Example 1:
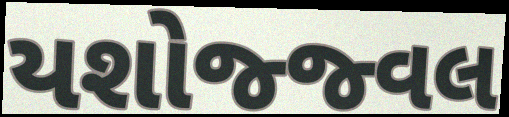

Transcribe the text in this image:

યશોજ્જ્વલ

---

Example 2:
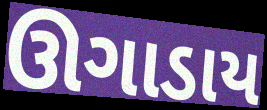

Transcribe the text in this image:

ઊગાડાય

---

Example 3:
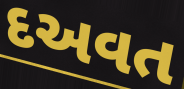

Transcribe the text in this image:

દઅવત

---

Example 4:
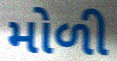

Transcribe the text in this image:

મોળી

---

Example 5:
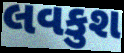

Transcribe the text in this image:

લવકુશ